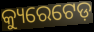
କ୍ୟୁରେଟେଡ଼